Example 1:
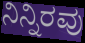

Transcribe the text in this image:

ನಿನ್ನಿರವು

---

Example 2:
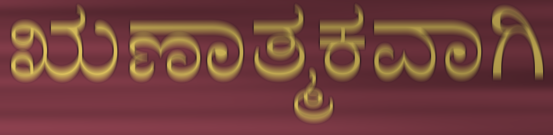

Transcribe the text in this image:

ಋಣಾತ್ಮಕವಾಗಿ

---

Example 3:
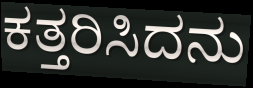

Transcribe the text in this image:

ಕತ್ತರಿಸಿದನು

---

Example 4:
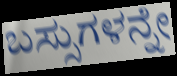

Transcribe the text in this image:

ಬಸ್ಸುಗಳನ್ನೇ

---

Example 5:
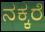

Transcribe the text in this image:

ನಕ್ಕರೆ